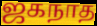
ஜகநாத